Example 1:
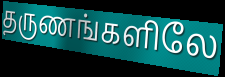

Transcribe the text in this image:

தருணங்களிலே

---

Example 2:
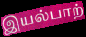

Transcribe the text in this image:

இயல்பாற்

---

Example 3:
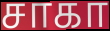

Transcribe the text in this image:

சாகா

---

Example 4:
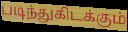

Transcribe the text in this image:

படிந்துகிடக்கும்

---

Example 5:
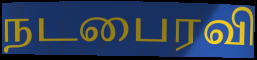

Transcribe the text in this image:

நடபைரவி